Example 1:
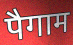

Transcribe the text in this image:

पैगाम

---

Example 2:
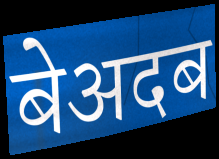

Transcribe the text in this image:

बेअदब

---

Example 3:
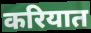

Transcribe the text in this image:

करियात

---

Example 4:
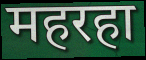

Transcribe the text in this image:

महरहा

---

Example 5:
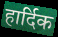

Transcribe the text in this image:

हार्दिक